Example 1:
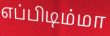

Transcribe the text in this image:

எப்பிடிம்மா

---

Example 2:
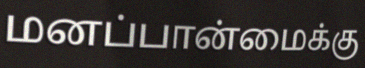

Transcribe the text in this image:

மனப்பான்மைக்கு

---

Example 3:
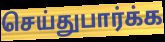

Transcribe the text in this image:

செய்துபார்க்க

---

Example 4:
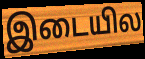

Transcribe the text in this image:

இடையில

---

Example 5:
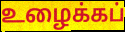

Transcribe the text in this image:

உழைக்கப்